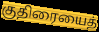
குதிரையைத்